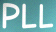
PLL